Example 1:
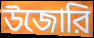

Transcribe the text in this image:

উজোরি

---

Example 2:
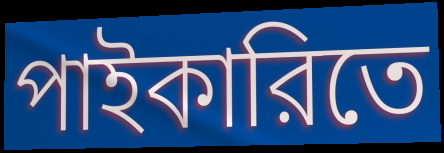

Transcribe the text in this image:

পাইকারিতে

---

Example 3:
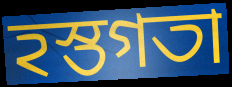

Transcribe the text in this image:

হস্তগতা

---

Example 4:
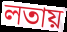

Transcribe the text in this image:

লতায়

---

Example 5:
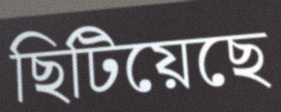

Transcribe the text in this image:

ছিটিয়েছে